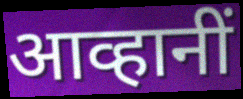
आव्हानीं